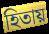
হিতায়